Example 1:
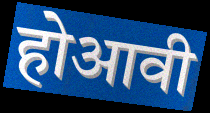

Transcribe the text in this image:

होआवी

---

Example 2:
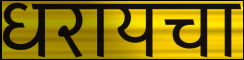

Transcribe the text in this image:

धरायचा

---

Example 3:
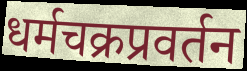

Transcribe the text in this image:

धर्मचक्रप्रवर्तन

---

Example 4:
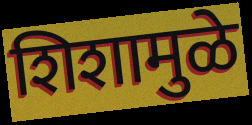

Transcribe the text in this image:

शिशामुळे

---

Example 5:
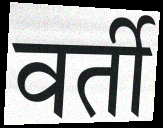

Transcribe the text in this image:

वर्ती